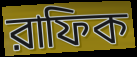
রাফিক